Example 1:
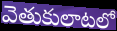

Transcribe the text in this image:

వెతుకులాటలో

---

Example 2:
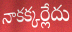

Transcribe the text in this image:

నాకక్కర్లేదు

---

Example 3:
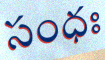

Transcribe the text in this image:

సంధః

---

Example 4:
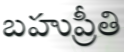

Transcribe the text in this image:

బహుప్రీతి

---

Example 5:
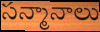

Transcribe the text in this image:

సన్మానాలు